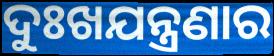
ଦୁଃଖଯନ୍ତ୍ରଣାର